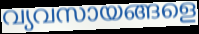
വ്യവസായങ്ങളെ